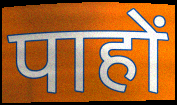
पाहों